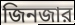
জিনজার